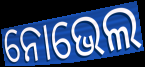
ନୋଭେଲ